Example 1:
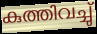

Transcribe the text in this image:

കുത്തിവച്ചു്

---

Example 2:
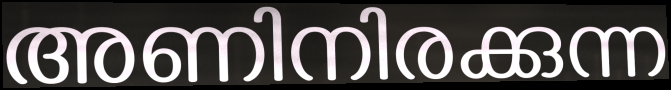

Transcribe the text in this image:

അണിനിരക്കുന്ന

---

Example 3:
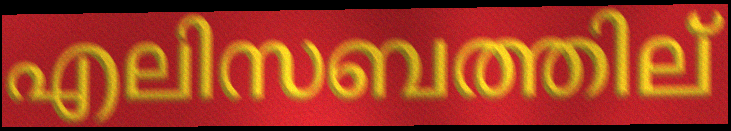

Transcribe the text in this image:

എലിസബത്തില്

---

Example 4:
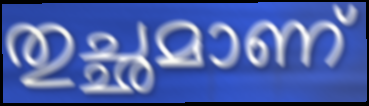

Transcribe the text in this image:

തുച്ഛമാണ്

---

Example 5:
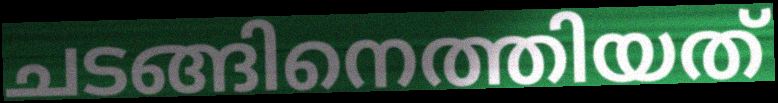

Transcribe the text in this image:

ചടങ്ങിനെത്തിയത്